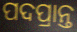
ପଦପ୍ରାନ୍ତ